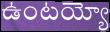
ఉంటయ్యో